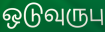
ஒடுவுருபு